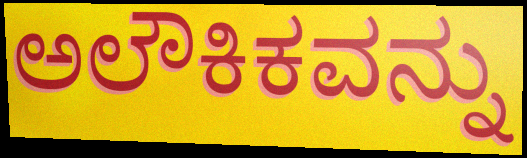
ಅಲೌಕಿಕವನ್ನು